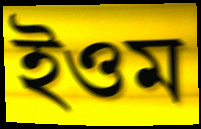
ইওম